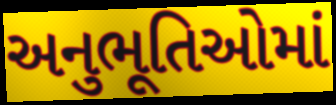
અનુભૂતિઓમાં